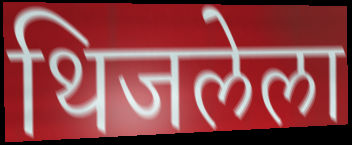
थिजलेला